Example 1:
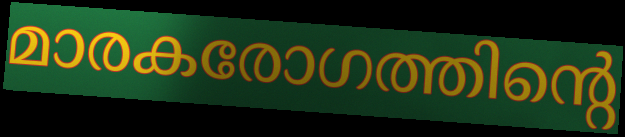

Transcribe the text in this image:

മാരകരോഗത്തിന്റെ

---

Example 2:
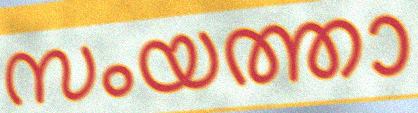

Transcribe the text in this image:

സംയത്താ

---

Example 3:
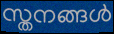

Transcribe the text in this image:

സ്തനങ്ങൾ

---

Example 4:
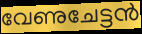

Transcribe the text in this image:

വേണുചേട്ടൻ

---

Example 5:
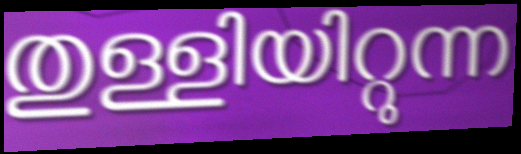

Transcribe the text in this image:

തുള്ളിയിറ്റുന്ന